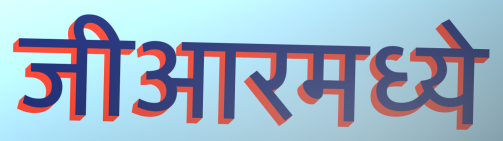
जीआरमध्ये